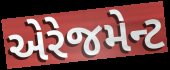
એરેજમેન્ટ